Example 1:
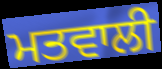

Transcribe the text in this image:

ਮਤਵਾਲੀ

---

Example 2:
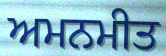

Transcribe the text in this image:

ਅਮਨਮੀਤ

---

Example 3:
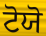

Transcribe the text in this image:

ਟੋਯੋ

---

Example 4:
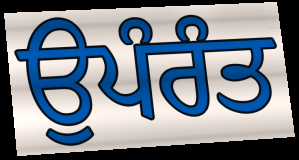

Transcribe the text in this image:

ਉਪੰਰੰਤ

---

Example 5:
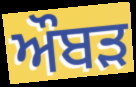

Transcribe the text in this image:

ਔਬੜ